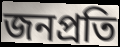
জনপ্রতি